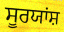
ਸੂਰਯਾਂਸ਼